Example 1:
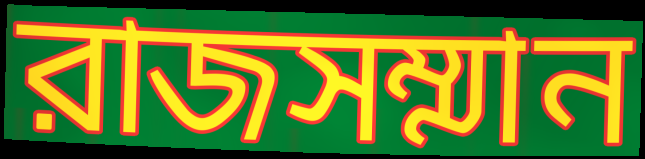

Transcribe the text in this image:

রাজসম্মান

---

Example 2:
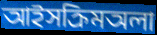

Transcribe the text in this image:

আইসক্রিমঅলা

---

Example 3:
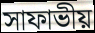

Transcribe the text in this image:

সাফাভীয়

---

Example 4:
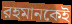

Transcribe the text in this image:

রহমানকেই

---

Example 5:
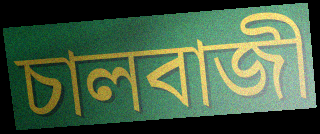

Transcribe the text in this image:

চালবাজী